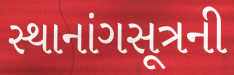
સ્થાનાંગસૂત્રની